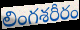
లింగశరీరం